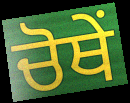
ਚੋਥੇਂ